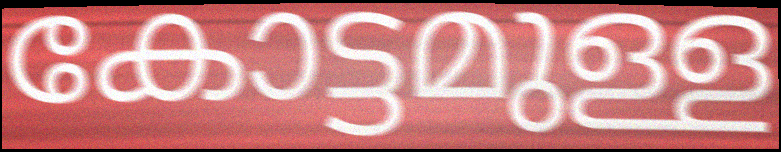
കോട്ടമുള്ള